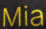
Mia